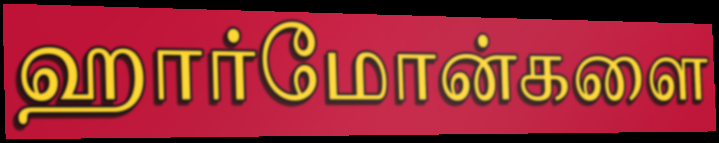
ஹார்மோன்களை